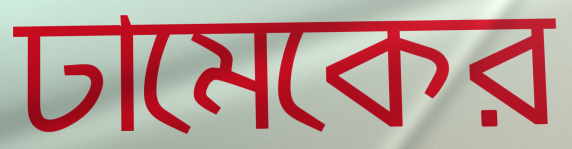
ঢামেকের